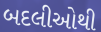
બદલીઓથી